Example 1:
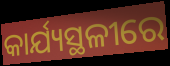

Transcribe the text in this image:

କାର୍ଯ୍ୟସ୍ଥଳୀରେ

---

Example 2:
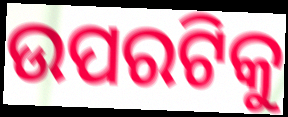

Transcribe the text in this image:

ଉପରଟିକୁ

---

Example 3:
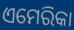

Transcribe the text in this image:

ଏମେରିକା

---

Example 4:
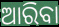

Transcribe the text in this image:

ଆରିବା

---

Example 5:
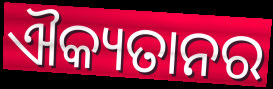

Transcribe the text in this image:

ଐକ୍ୟତାନର